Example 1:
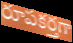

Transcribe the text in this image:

రూపకర్తగా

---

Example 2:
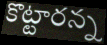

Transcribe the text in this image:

కొట్టారన్న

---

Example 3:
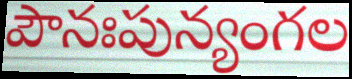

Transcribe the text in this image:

పౌనఃపున్యంగల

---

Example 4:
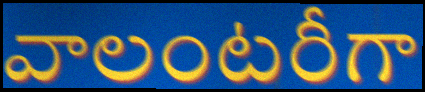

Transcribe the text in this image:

వాలంటరీగా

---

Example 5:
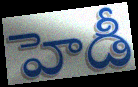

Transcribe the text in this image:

హెడీ